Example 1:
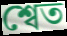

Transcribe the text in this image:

শ্বেত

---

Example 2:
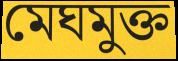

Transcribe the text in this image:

মেঘমুক্ত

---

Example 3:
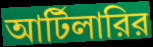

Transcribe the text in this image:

আর্টিলারির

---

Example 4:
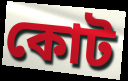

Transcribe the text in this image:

কোট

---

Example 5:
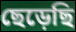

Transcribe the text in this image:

ছেড়েছি